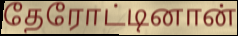
தேரோட்டினான்